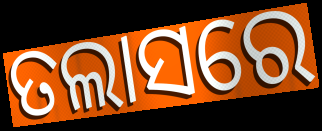
ତଲାସରେ